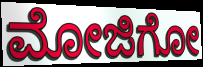
ಮೋಜಿಗೋ